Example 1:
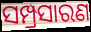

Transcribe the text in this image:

ସମ୍ପ୍ରସାରଣ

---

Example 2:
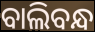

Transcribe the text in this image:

ବାଲିବନ୍ଧ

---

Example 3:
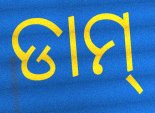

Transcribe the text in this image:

ଡାମ୍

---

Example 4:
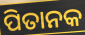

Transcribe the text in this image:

ପିତାନକ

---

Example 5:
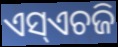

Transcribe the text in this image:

ଏସ୍ଏଚଜି